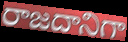
రాజదానిగా